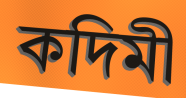
কদিমী